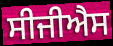
ਸੀਜੀਐਸ